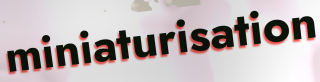
miniaturisation